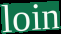
loin